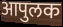
आपुलक